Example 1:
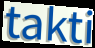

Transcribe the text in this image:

takti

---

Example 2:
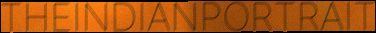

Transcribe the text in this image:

THEINDIANPORTRAIT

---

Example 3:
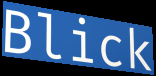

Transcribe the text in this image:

Blick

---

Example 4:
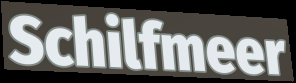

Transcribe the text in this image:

Schilfmeer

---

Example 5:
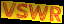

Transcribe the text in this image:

VSWR